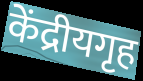
केंद्रीयगृह